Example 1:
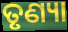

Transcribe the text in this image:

ତୃଣ୍ୟା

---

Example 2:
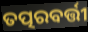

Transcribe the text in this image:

ତତ୍ପରବର୍ତ୍ତୀ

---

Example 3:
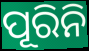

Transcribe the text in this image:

ପୂରିନି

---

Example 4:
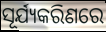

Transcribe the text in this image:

ସୂର୍ଯ୍ୟକରିଣରେ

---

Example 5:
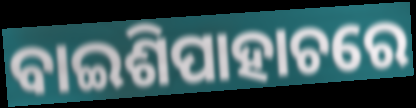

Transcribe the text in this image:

ବାଇଶିପାହାଚରେ